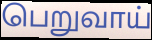
பெறுவாய்